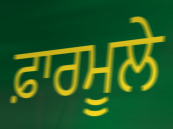
ਫ਼ਾਰਮੂਲੇ